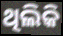
ଥିଲିକି